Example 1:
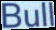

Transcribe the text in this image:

Bull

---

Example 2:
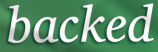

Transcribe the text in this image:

backed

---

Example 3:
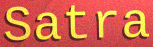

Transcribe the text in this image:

Satra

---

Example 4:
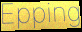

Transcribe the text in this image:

Epping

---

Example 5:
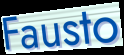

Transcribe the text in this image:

Fausto